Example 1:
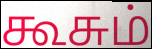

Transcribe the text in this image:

கூசும்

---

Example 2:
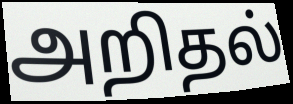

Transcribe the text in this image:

அறிதல்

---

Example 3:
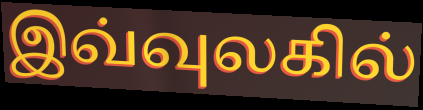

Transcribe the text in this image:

இவ்வுலகில்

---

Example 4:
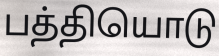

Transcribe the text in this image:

பத்தியொடு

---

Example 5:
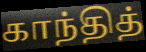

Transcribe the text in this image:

காந்தித்